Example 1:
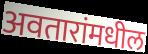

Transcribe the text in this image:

अवतारांमधील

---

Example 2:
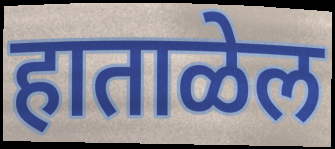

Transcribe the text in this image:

हाताळेल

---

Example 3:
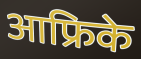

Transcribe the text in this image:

आफ्रिके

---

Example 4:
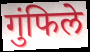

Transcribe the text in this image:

गुंफिले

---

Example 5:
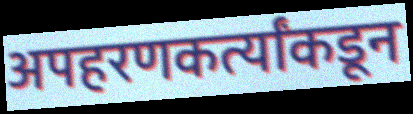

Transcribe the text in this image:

अपहरणकर्त्यांकडून